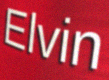
Elvin